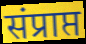
संप्राप्त